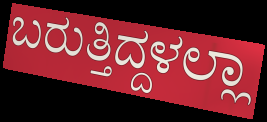
ಬರುತ್ತಿದ್ದಳಲ್ಲಾ